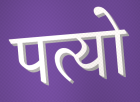
पत्यो